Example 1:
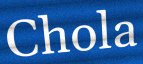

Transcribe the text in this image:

Chola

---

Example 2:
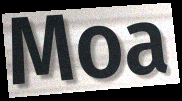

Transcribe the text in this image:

Moa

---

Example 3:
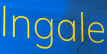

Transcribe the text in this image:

Ingale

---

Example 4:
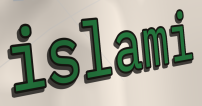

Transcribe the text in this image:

islami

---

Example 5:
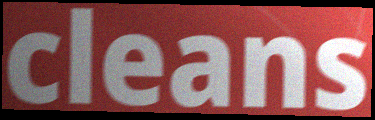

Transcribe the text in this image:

cleans